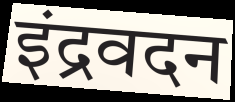
इंद्रवदन